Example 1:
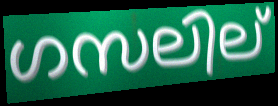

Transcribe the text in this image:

ഗസലില്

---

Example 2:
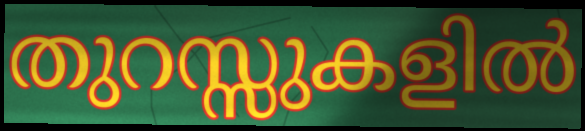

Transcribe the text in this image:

തുറസ്സുകളിൽ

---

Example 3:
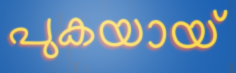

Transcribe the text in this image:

പുകയായ്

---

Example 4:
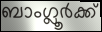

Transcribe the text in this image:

ബാംഗ്ലൂർക്ക്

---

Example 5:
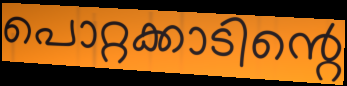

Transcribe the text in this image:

പൊറ്റക്കാടിന്റെ